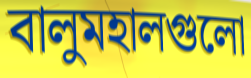
বালুমহালগুলো